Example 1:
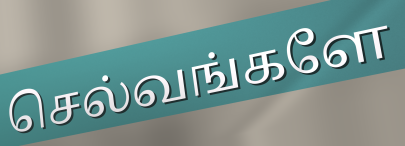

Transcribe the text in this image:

செல்வங்களே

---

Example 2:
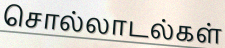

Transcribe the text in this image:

சொல்லாடல்கள்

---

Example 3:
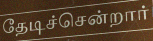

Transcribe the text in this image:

தேடிச்சென்றார்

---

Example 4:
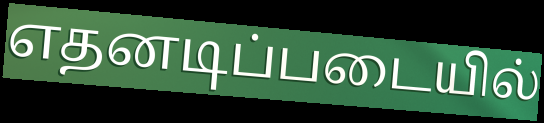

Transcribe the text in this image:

எதனடிப்படையில்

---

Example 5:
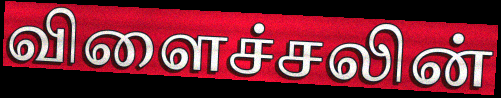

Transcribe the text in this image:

விளைச்சலின்